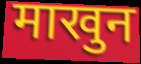
माखुन